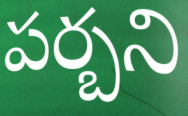
పర్బని